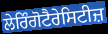
ਲੇਰਿੰਗੋਟੈਰੇਸਿਟੀਜ਼